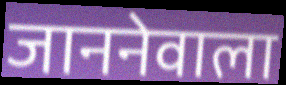
जाननेवाला